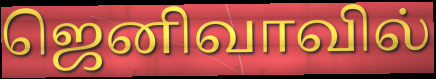
ஜெனிவாவில்